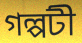
গল্পটী